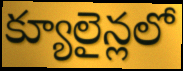
క్యూలైన్లలో